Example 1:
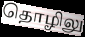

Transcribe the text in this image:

தொழிலு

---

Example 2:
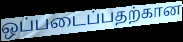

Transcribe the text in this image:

ஒப்படைப்பதற்கான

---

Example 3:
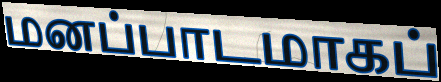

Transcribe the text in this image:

மனப்பாடமாகப்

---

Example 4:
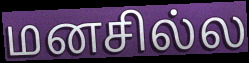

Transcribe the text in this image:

மனசில்ல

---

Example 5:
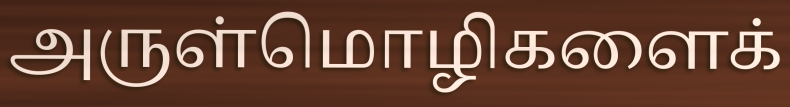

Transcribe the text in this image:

அருள்மொழிகளைக்